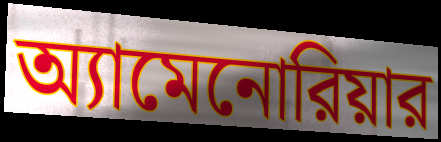
অ্যামেনোরিয়ার